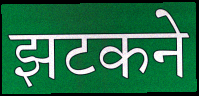
झटकने